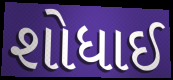
શોધાઈ